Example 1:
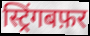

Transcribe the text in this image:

स्ट्रिंगबफ़र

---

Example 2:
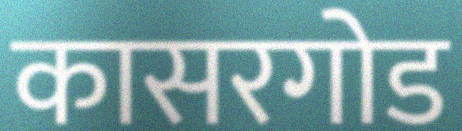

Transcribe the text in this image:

कासरगोड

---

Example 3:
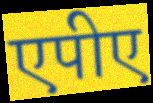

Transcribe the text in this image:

एपीए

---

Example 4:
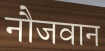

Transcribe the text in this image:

नौजवान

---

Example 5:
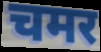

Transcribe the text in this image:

चमर